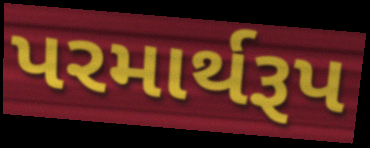
પરમાર્થરૂપ